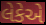
લેકેએ